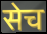
सेच